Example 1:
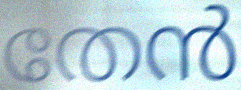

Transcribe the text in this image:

തേൻ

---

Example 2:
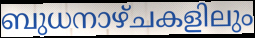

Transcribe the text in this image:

ബുധനാഴ്ചകളിലും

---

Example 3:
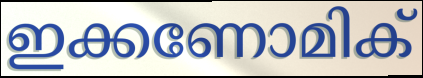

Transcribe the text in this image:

ഇക്കണോമിക്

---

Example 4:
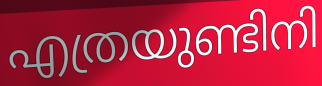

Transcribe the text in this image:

എത്രയുണ്ടിനി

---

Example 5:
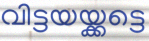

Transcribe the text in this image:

വിട്ടയയ്ക്കട്ടെ